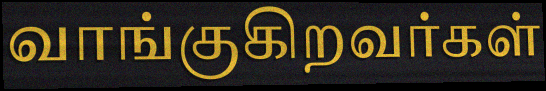
வாங்குகிறவர்கள்